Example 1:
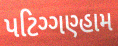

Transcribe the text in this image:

પટિગ્ગણ્હામ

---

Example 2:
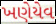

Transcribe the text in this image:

ખણેયેવ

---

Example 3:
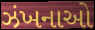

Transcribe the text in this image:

ઝંખનાઓ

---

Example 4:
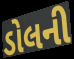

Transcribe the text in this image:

ડોલની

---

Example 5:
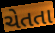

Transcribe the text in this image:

ચેતતા